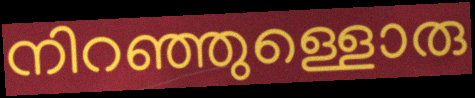
നിറഞ്ഞുള്ളൊരു